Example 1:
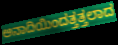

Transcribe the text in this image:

ಅನಾದಿಯಿಂದತ್ತತ್ತಲಾದ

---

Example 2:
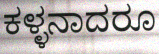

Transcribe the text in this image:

ಕಳ್ಳನಾದರೂ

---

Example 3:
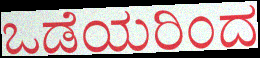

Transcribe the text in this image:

ಒಡೆಯರಿಂದ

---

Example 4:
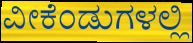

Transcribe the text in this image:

ವೀಕೆಂಡುಗಳಲ್ಲಿ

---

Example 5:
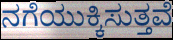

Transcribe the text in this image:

ನಗೆಯುಕ್ಕಿಸುತ್ತವೆ